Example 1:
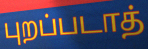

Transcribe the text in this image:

புறப்படாத்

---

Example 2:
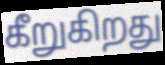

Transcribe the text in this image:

கீறுகிறது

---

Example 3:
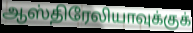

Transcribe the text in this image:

ஆஸ்திரேலியாவுக்குக்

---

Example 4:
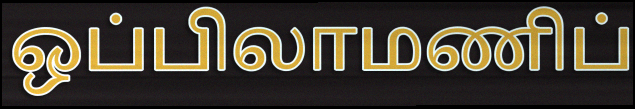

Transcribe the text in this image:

ஒப்பிலாமணிப்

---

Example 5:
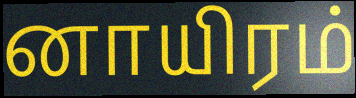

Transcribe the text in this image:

னாயிரம்